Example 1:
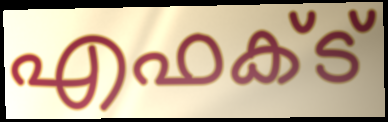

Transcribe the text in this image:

എഫക്ട്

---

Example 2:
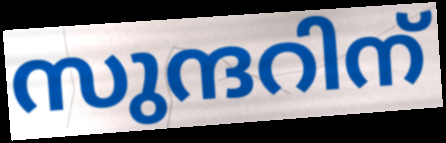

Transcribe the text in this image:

സുന്ദറിന്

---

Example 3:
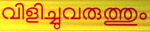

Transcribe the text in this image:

വിളിച്ചുവരുത്തും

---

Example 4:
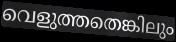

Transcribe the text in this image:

വെളുത്തതെങ്കിലും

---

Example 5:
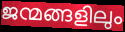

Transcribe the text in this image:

ജന്മങ്ങളിലും